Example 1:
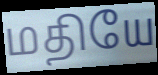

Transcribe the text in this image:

மதியே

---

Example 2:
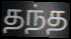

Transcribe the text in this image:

தந்த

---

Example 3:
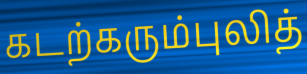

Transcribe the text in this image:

கடற்கரும்புலித்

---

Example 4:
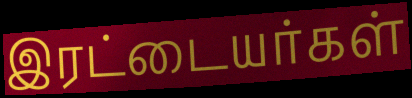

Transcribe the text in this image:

இரட்டையர்கள்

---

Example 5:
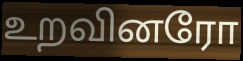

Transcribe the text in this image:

உறவினரோ